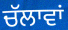
ਚੱਲਾਵਾਂ